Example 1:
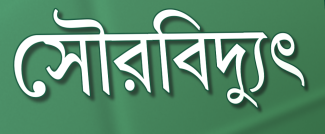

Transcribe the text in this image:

সৌরবিদ্যুৎ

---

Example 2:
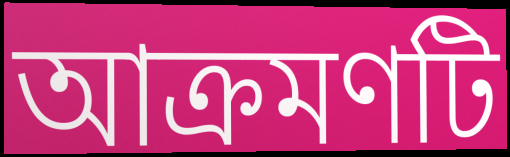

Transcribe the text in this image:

আক্রমণটি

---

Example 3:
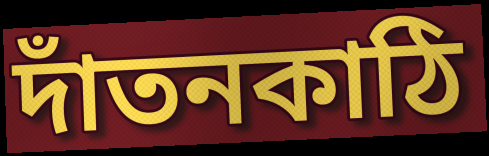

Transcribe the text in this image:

দাঁতনকাঠি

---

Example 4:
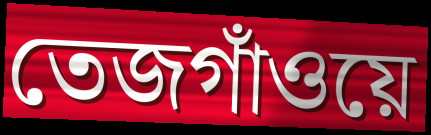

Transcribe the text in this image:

তেজগাঁওয়ে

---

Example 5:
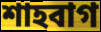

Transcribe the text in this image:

শাহবাগ